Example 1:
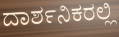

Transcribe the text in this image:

ದಾರ್ಶನಿಕರಲ್ಲಿ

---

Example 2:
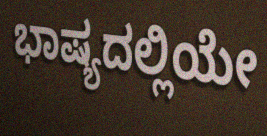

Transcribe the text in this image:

ಭಾಷ್ಯದಲ್ಲಿಯೇ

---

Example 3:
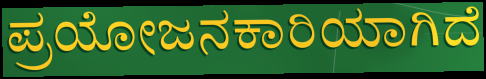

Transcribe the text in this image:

ಪ್ರಯೋಜನಕಾರಿಯಾಗಿದೆ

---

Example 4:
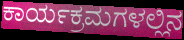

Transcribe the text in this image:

ಕಾರ್ಯಕ್ರಮಗಳಲ್ಲಿನ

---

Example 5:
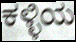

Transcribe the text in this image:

ಕಳ್ಳಿಯ